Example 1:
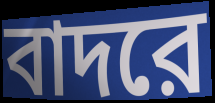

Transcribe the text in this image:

বাদরে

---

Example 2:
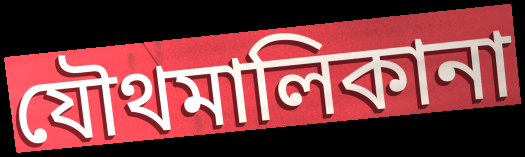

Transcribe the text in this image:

যৌথমালিকানা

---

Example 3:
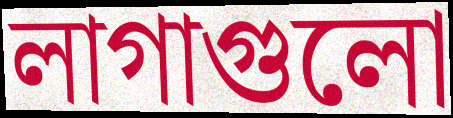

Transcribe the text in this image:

লাগাগুলো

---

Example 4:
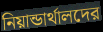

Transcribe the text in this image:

নিয়ান্ডার্থালদের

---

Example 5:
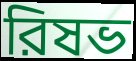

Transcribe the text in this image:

রিষভ